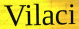
Vilaci